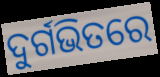
ଦୁର୍ଗଭିତରେ